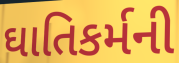
ઘાતિકર્મની